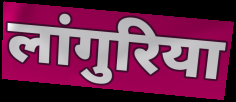
लांगुरिया